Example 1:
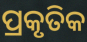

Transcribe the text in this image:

ପ୍ରକୃତିକ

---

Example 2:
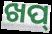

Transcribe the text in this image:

ଖପ୍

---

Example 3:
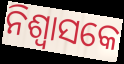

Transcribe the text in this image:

ନିଶ୍ଵାସକେ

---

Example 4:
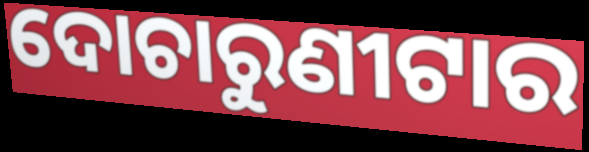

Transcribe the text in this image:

ଦୋଚାରୁଣୀଟାର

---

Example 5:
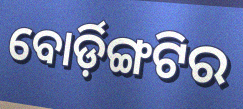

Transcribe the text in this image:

ବୋର୍ଡ଼ିଙ୍ଗଟିର